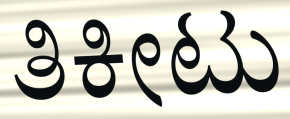
ತಿಕೀಟು